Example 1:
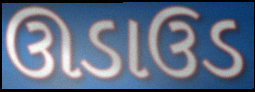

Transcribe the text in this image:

ઊડાઉડ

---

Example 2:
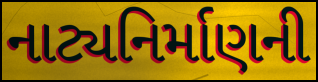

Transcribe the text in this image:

નાટ્યનિર્માણની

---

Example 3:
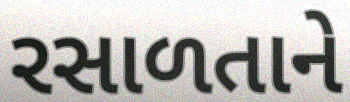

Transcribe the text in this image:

રસાળતાને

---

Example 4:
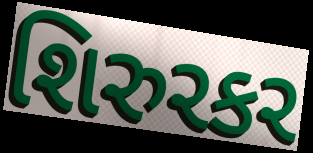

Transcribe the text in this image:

શિરુરકર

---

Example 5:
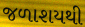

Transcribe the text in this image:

જળાશયથી